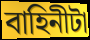
বাহিনীটা